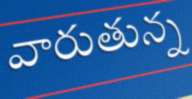
వారుతున్న